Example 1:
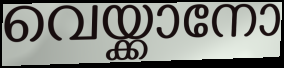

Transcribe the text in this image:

വെയ്ക്കാനോ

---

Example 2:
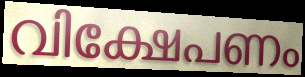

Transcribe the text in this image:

വിക്ഷേപണം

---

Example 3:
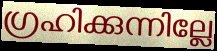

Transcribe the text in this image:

ഗ്രഹിക്കുന്നില്ലേ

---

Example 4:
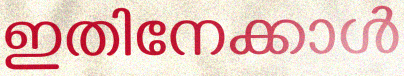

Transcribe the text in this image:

ഇതിനേക്കാൾ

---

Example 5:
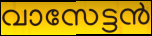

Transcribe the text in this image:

വാസേട്ടൻ